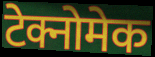
टेक्नोमेक